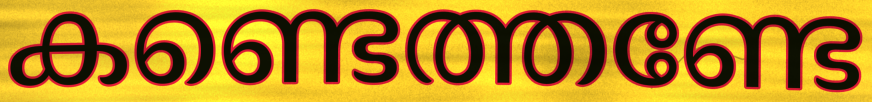
കണ്ടെത്തണ്ടേ